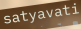
satyavati